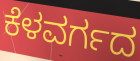
ಕೆಳವರ್ಗದ